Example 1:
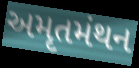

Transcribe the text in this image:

અમૃતમંથન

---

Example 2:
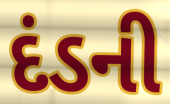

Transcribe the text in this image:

દંડની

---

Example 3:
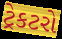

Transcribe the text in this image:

ટ્રેકટરો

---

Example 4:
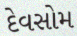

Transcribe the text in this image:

દેવસોમ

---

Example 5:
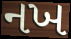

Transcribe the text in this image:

નખ